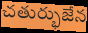
చతుర్భుజేన